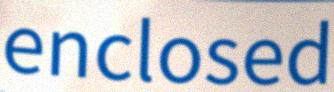
enclosed